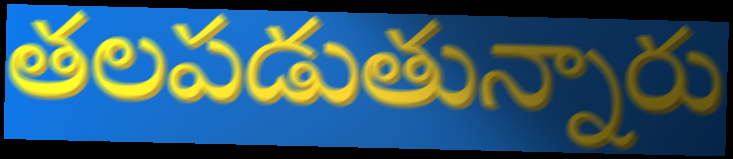
తలపడుతున్నారు